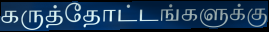
கருத்தோட்டங்களுக்கு